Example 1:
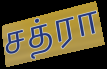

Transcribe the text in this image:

சத்ரா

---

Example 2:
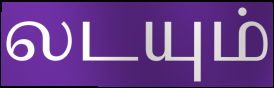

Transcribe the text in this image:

லடயும்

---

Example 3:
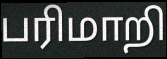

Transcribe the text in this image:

பரிமாறி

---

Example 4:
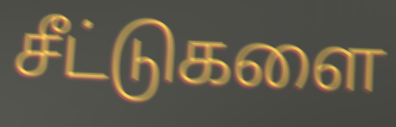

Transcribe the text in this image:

சீட்டுகளை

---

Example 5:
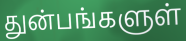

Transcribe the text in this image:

துன்பங்களுள்